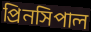
প্রিনসিপাল